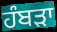
ਹੰਬਡ਼ਾ